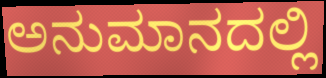
ಅನುಮಾನದಲ್ಲಿ